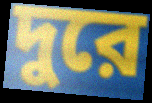
দুরে